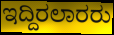
ಇದ್ದಿರಲಾರರು